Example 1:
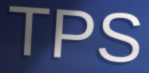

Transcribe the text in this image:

TPS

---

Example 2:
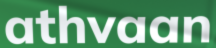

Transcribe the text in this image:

athvaan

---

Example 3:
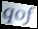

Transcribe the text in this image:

qof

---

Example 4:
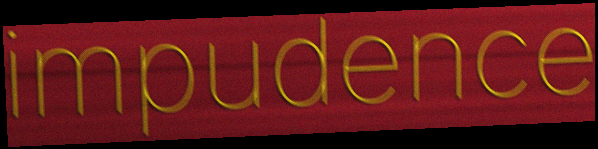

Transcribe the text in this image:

impudence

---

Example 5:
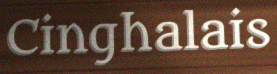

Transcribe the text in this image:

Cinghalais